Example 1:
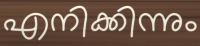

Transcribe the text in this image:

എനിക്കിന്നും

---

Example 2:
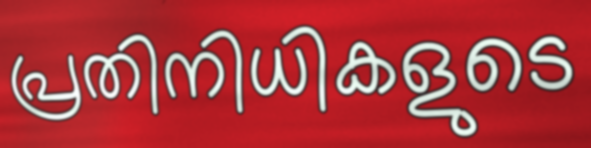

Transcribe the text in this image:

പ്രതിനിധികളുടെ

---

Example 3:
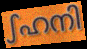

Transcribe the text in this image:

ഽഹനി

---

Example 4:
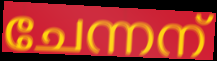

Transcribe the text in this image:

ചേന്നന്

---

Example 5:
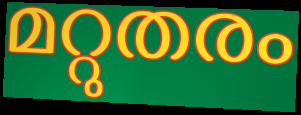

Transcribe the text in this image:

മറ്റുതരം